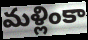
మళ్లింకా